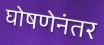
घोषणेनंतर